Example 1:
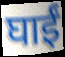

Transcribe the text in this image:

घाईं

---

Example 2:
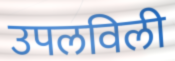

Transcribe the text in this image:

उपलविली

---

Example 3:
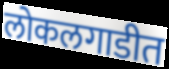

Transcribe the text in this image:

लोकलगाडीत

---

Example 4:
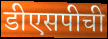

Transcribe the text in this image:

डीएसपीची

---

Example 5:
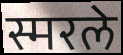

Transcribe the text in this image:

स्मरले